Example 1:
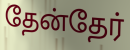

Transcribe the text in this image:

தேன்தேர்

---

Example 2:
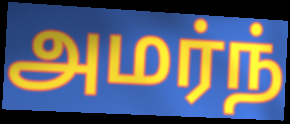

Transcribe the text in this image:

அமர்ந்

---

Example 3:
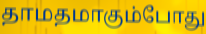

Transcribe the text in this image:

தாமதமாகும்போது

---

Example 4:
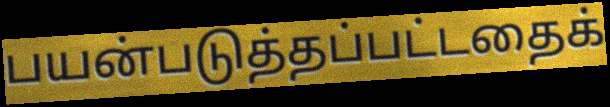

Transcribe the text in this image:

பயன்படுத்தப்பட்டதைக்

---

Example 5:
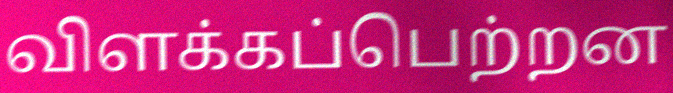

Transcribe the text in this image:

விளக்கப்பெற்றன